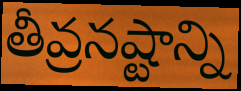
తీవ్రనష్టాన్ని